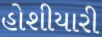
હોશીયારી